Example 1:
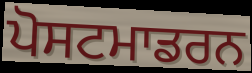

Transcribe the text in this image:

ਪੋਸਟਮਾਡਰਨ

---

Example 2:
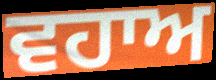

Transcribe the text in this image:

ਵਹਾਅ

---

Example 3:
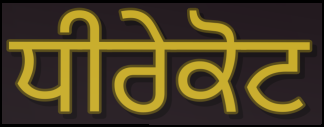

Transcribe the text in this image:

ਧੀਰੇਕੋਟ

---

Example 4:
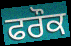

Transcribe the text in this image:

ਫਰੌਕ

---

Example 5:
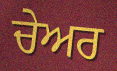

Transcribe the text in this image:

ਚੇਅਰ